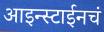
आइन्स्टाईनचं